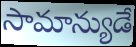
సామాన్యుడే